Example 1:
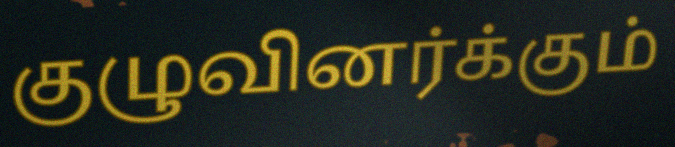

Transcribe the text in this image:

குழுவினர்க்கும்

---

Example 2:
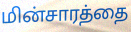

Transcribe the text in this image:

மின்சாரத்தை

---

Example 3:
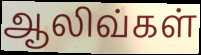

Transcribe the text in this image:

ஆலிவ்கள்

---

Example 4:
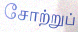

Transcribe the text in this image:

சோற்றுப்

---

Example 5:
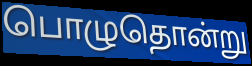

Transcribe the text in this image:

பொழுதொன்று